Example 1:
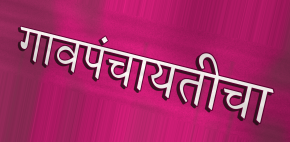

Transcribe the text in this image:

गावपंचायतीचा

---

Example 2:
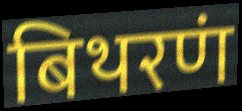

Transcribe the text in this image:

बिथरणं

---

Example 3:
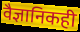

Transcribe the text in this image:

वैज्ञानिकही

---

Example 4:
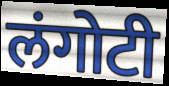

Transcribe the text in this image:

लंगोटी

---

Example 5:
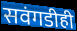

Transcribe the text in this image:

सवंगडीही